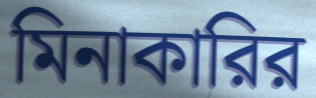
মিনাকারির